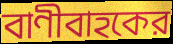
বাণীবাহকের